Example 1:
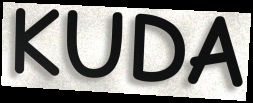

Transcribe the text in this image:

KUDA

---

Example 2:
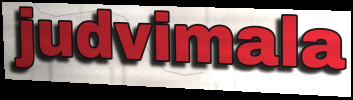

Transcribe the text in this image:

judvimala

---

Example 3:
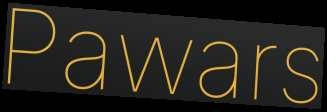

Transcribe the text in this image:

Pawars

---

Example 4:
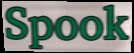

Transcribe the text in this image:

Spook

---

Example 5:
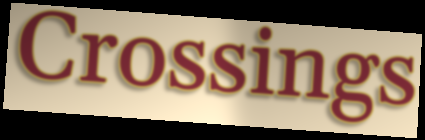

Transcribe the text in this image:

Crossings